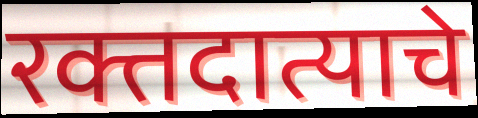
रक्तदात्याचे